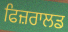
ਫਿਜ਼ਰਾਲਡ